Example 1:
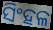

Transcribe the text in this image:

ସିଂହଳ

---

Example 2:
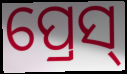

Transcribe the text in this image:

ପ୍ରେସ୍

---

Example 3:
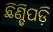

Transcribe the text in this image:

ଛିଣ୍ଡିପଡ଼ି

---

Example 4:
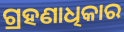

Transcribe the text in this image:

ଗ୍ରହଣାଧିକାର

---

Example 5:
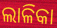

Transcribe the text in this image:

ଲାଳିକା